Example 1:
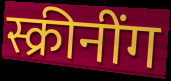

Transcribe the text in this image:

स्क्रीनींग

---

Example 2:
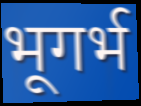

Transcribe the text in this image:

भूगर्भ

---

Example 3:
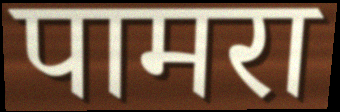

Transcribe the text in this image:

पामरा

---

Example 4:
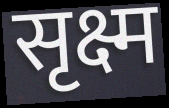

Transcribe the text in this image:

सृक्ष्म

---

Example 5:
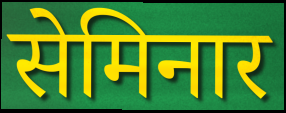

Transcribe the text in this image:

सेमिनार